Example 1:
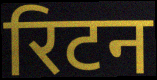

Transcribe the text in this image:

रिटन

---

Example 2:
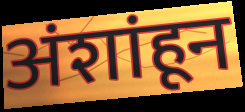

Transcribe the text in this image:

अंशांहून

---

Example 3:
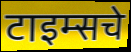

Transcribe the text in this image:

टाइम्सचे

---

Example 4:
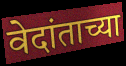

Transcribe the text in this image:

वेदांताच्या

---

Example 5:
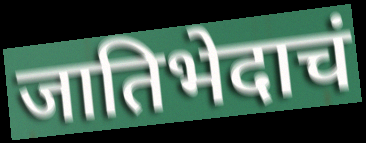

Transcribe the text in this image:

जातिभेदाचं